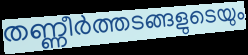
തണ്ണീർത്തടങ്ങളുടെയും